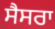
ਸੈਸਰਾ